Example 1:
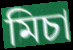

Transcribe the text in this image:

মিচা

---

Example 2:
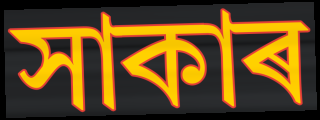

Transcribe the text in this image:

সাকাৰ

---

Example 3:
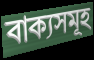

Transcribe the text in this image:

বাক্যসমূহ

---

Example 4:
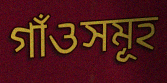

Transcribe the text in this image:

গাঁওসমূহ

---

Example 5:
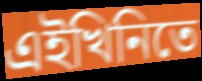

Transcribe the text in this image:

এইখিনিতে